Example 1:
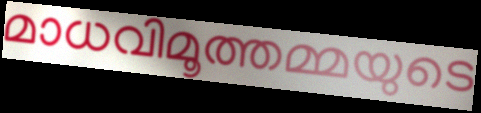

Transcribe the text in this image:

മാധവിമൂത്തമ്മയുടെ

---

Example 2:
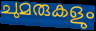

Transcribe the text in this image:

ചുമരുകളും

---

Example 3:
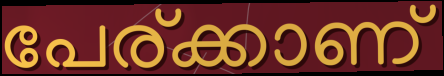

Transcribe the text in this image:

പേര്ക്കാണ്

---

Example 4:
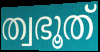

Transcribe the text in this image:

ത്വഭൂത്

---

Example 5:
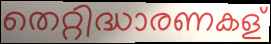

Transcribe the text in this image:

തെറ്റിദ്ധാരണകള്